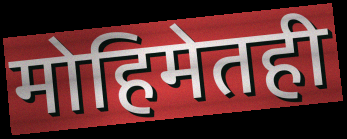
मोहिमेतही